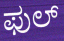
ಫುಲ್